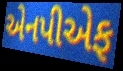
એનપીએફ